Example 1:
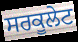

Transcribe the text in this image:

ਸਰਕੂਲੇਟ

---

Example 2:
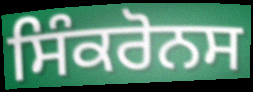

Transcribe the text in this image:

ਸਿੰਕਰੋਨਸ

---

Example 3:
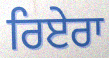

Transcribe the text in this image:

ਰਿਏਰਾ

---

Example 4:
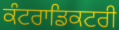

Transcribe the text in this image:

ਕੰਟਰਾਡਿਕਟਰੀ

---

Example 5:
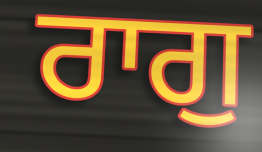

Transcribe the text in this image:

ਰਾਗੁ